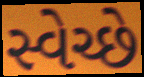
સ્વેચ્છે